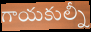
గాయకుల్నీ